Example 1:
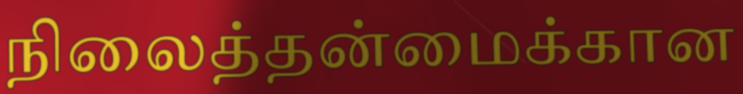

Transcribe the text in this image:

நிலைத்தன்மைக்கான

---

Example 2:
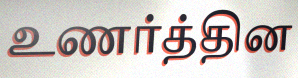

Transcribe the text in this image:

உணர்த்தின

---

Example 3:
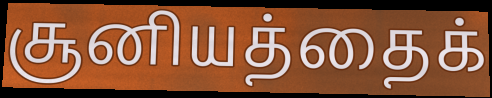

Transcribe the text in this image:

சூனியத்தைக்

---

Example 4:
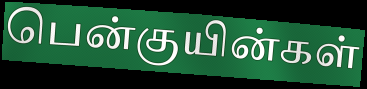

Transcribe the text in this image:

பென்குயின்கள்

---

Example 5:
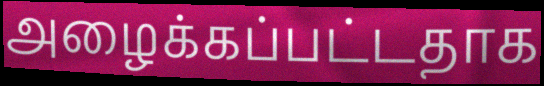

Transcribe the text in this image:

அழைக்கப்பட்டதாக